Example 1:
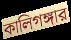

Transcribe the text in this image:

কালিগঙ্গার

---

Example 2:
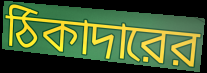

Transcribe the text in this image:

ঠিকাদারের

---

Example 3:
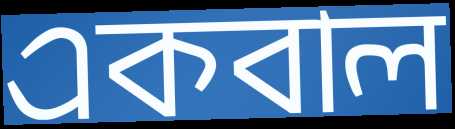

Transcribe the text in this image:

একবাল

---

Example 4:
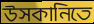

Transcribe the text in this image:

উসকানিতে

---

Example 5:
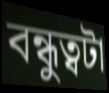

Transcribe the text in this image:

বন্ধুত্বটা